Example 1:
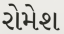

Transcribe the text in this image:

રોમેશ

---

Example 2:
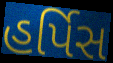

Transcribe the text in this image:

હર્પિસ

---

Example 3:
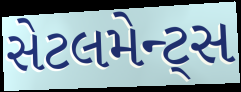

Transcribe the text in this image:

સેટલમેન્ટ્સ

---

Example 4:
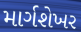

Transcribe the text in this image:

માર્ગશેખર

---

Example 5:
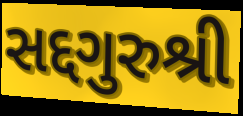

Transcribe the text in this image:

સદ્દગુરુશ્રી